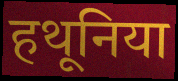
हथूनिया